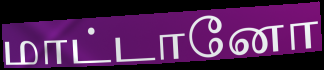
மாட்டானோ